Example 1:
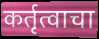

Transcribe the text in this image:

कर्तृत्वाचा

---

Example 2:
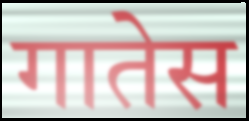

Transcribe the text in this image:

गातेस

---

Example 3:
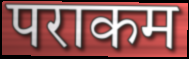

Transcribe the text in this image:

पराकम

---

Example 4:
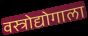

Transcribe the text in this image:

वस्त्रोद्योगाला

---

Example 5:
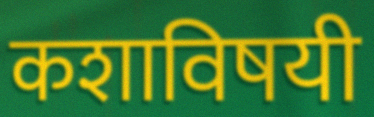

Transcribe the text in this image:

कशाविषयी